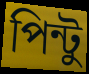
পিন্টু